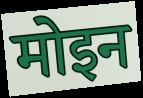
मोइन